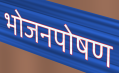
भोजनपोषण